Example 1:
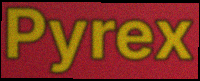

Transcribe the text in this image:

Pyrex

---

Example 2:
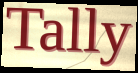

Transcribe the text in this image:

Tally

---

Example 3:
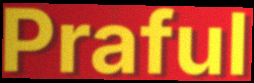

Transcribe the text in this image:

Praful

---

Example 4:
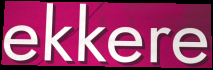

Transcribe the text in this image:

ekkere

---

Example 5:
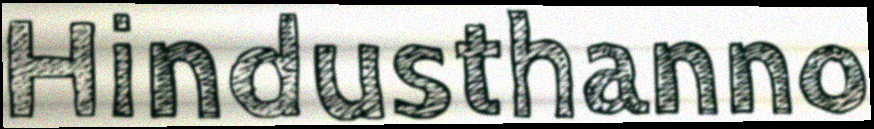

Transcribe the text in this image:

Hindusthanno